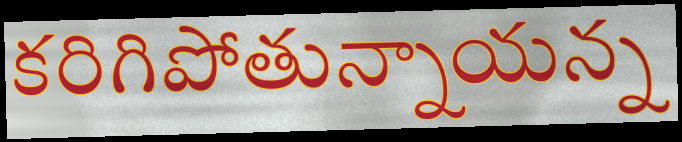
కరిగిపోతున్నాయన్న